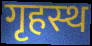
गृहस्‍थ